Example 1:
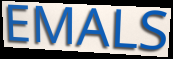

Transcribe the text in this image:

EMALS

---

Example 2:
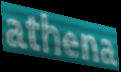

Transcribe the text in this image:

athena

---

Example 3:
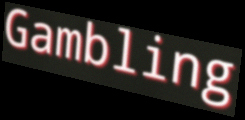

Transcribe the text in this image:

Gambling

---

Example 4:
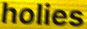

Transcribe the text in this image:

holies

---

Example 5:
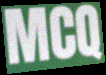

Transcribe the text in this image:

MCQ